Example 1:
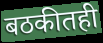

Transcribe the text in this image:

बठकीतही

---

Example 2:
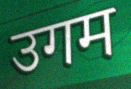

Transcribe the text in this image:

उगम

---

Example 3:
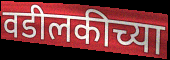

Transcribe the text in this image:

वडीलकीच्या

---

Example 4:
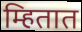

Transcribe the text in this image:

म्हितात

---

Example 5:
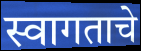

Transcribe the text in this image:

स्वागताचे